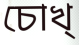
চোখ্